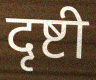
दृष्टी